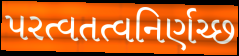
પરત્વતત્વનિર્ણચ્છ